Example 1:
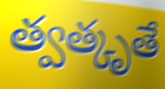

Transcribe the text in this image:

త్వత్కృతే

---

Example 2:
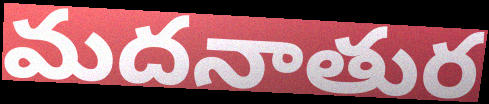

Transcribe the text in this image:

మదనాతుర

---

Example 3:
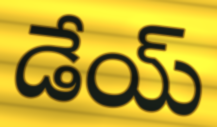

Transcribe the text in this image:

డేయ్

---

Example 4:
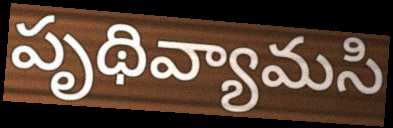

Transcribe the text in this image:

పృథివ్యామసి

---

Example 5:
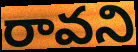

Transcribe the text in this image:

రావని